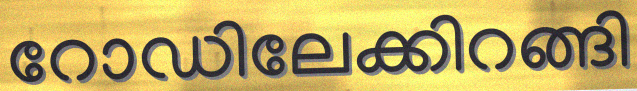
റോഡിലേക്കിറങ്ങി